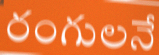
రంగులనే